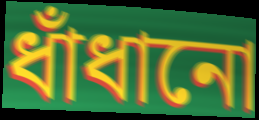
ধাঁধানো